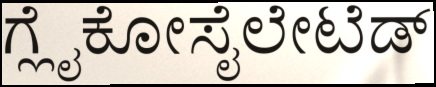
ಗ್ಲೈಕೋಸೈಲೇಟೆಡ್